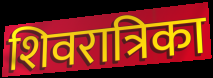
शिवरात्रिका